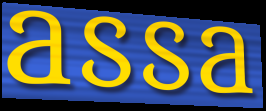
assa